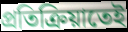
প্রতিক্রিয়াতেই